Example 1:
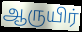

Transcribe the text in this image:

ஆருயிர்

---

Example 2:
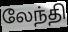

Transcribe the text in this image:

லேந்தி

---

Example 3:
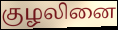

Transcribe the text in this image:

குழலினை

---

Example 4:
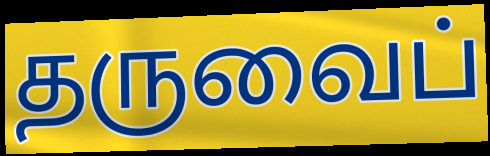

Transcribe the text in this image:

தருவைப்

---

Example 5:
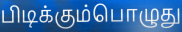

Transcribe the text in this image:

பிடிக்கும்பொழுது